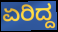
ಏರಿದ್ದ